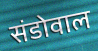
संडोवाल